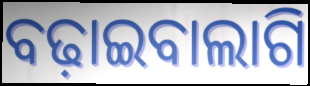
ବଢ଼ାଇବାଲାଗି